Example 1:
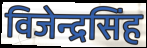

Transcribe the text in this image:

विजेन्द्रसिंह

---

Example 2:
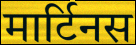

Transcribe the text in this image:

मार्टिनस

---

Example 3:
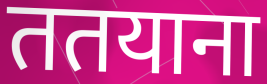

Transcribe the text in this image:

ततयाना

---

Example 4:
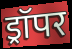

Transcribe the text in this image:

ड्रॉपर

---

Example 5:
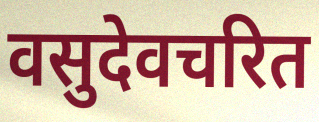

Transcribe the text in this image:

वसुदेवचरित